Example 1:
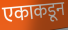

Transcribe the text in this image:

एकाकडून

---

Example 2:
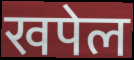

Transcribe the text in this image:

खपेल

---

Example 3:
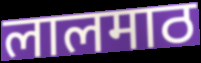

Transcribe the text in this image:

लालमाठ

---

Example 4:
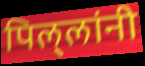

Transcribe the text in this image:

पिल्लांनी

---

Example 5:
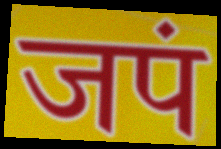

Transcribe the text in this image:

जपं